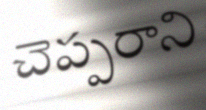
చెప్పరాని